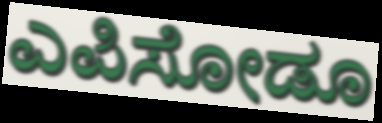
ಎಪಿಸೋಡೂ